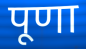
पूणा